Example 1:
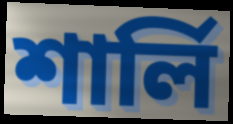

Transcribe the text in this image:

শার্লি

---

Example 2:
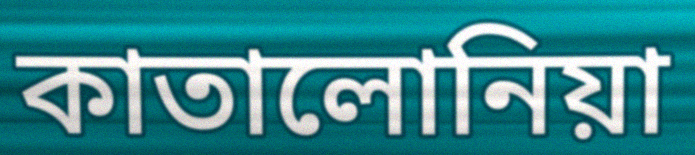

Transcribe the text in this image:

কাতালোনিয়া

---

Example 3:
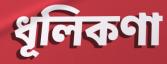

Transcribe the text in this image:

ধূলিকণা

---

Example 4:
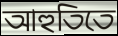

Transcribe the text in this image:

আহুতিতে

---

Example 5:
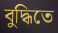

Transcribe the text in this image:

বুদ্ধিতে